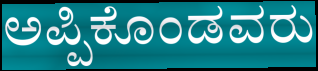
ಅಪ್ಪಿಕೊಂಡವರು